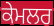
ਕੇਮਲਰ